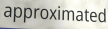
approximated